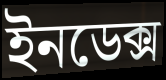
ইনডেক্স